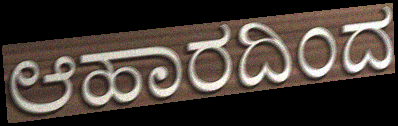
ಆಹಾರದಿಂದ